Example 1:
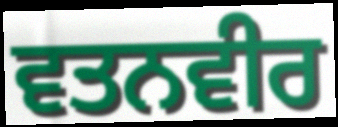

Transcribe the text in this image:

ਵਤਨਵੀਰ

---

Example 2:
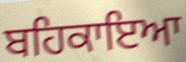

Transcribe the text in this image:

ਬਹਿਕਾਇਆ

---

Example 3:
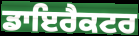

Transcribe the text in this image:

ਡਾਇਰੈਕਟਰ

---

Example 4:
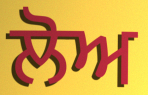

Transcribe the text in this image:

ਲੋਅ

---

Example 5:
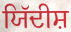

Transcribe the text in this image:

ਯਿੱਦੀਸ਼